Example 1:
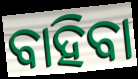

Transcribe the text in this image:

ବାହିବା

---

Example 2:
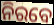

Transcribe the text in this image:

ନିରବେ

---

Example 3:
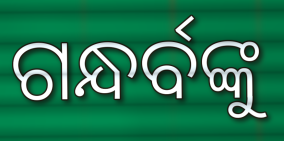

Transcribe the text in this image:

ଗନ୍ଧର୍ବଙ୍କୁ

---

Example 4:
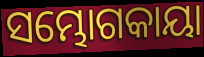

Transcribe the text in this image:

ସମ୍ଭୋଗକାୟା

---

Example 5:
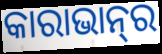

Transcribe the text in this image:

କାରାଭାନ୍‍ର